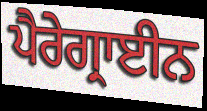
ਪੈਰੇਗ੍ਰਾਈਨ